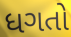
ધગતો